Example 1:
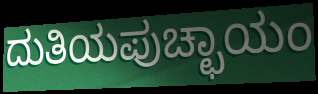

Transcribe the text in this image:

ದುತಿಯಪುಚ್ಛಾಯಂ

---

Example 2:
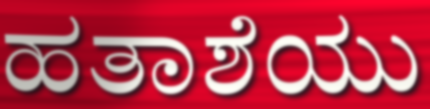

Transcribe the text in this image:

ಹತಾಶೆಯು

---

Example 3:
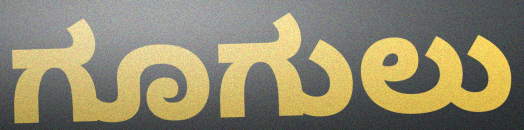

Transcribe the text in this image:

ಗೂಗುಲು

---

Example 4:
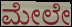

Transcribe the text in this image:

ಮೇಲೇ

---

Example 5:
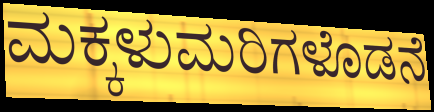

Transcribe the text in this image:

ಮಕ್ಕಳುಮರಿಗಳೊಡನೆ